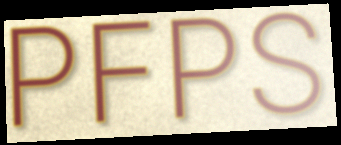
PFPS